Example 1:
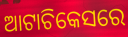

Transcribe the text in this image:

ଆଟାଚିକେସରେ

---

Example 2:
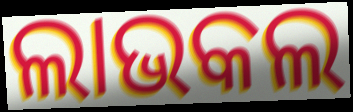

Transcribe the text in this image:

ଲାଭକଲ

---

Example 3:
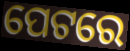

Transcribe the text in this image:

ପେଟରେ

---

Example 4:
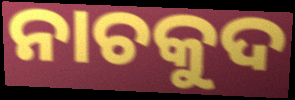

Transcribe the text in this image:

ନାଚକୁଦ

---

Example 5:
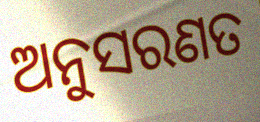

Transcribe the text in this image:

ଅନୁସରଣତ